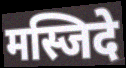
मस्जिदे